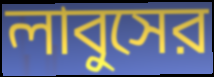
লাবুসের